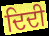
ਦਿਦੀ